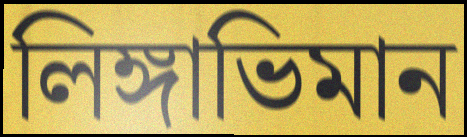
লিঙ্গাভিমান